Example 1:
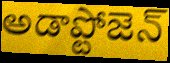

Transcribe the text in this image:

అడాప్టోజెన్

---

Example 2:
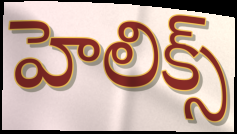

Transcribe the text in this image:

హెలిక్స్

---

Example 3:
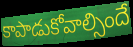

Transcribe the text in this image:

కాపాడుకోవాల్సిందే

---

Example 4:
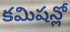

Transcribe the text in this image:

కమిషన్లో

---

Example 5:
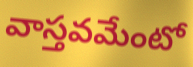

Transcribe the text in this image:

వాస్తవమేంటో